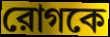
রোগকে